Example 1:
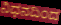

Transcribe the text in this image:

ನಿಧನದಿಂದ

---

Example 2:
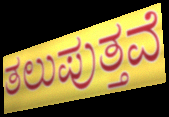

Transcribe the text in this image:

ತಲುಪುತ್ತವೆ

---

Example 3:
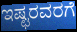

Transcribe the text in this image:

ಇಷ್ಟರವರಗೆ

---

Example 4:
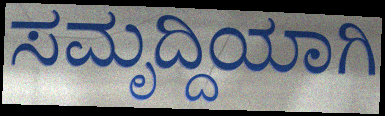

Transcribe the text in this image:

ಸಮೃದ್ದಿಯಾಗಿ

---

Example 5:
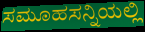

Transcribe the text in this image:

ಸಮೂಹಸನ್ನಿಯಲ್ಲಿ